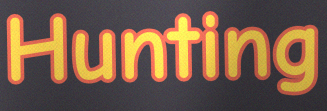
Hunting